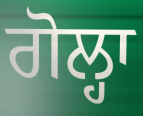
ਗੋਲ੍ਹਾ